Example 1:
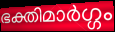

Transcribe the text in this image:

ഭക്തിമാർഗ്ഗം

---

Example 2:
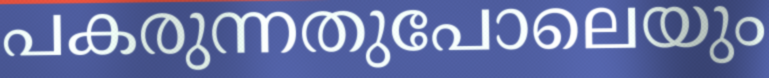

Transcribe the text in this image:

പകരുന്നതുപോലെയും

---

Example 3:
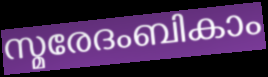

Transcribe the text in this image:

സ്മരേദംബികാം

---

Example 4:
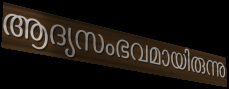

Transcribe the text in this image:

ആദ്യസംഭവമായിരുന്നു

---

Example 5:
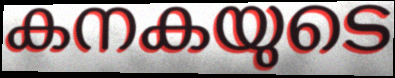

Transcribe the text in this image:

കനകയുടെ